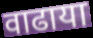
वाढाया